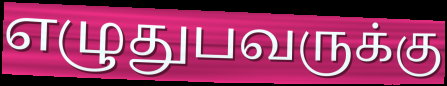
எழுதுபவருக்கு